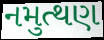
નમુત્થણ